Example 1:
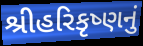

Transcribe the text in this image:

શ્રીહરિકૃષ્ણનું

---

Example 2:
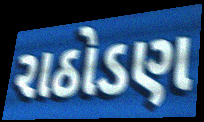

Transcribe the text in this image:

રાઠોડણ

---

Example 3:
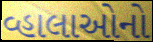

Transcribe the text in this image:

વ્હાલાઓનો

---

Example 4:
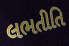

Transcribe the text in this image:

લભતીતિ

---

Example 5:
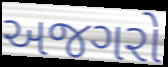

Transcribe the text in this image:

અજગરો